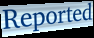
Reported